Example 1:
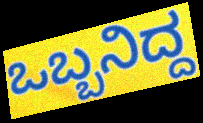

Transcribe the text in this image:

ಒಬ್ಬನಿದ್ದ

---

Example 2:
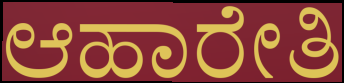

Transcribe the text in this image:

ಆಹಾರೇತಿ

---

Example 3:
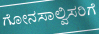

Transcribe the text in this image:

ಗೋನಸಾಲ್ವಿಸರಿಗೆ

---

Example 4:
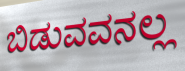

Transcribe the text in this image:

ಬಿಡುವವನಲ್ಲ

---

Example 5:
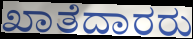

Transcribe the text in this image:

ಖಾತೆದಾರರು